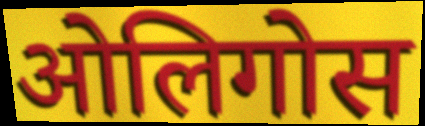
ओलिगोस